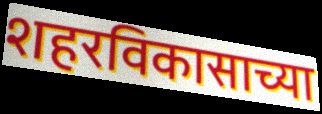
शहरविकासाच्या